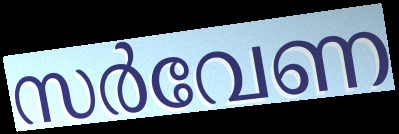
സർവേണ